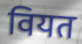
वियत